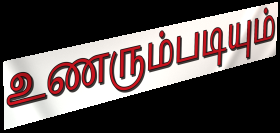
உணரும்படியும்